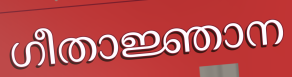
ഗീതാജ്ഞാന